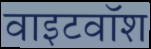
वाइटवॉश